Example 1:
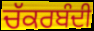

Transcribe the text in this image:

ਚੱਕਰਬੰਦੀ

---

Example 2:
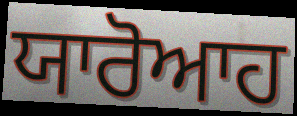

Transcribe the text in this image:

ਯਾਰੋਆਹ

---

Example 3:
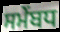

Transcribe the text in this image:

ਸਮੇਂਬਧ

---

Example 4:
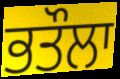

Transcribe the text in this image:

ਭਤੌਲਾ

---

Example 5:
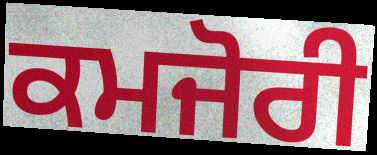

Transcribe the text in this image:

ਕਮਜੋਰੀ